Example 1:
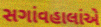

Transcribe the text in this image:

સગાંવહાલાંએ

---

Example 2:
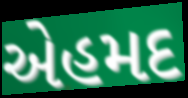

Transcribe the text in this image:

એહમદ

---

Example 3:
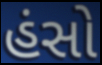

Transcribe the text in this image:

હંસો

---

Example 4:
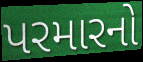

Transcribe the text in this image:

પરમારનો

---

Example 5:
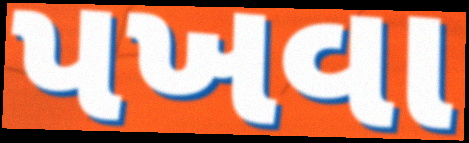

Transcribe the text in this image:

પખવા